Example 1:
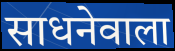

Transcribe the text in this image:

साधनेवाला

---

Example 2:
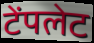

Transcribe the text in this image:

टेंपलेट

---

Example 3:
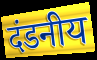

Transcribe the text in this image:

दंडनीय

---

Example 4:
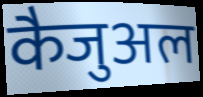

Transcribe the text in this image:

कैजुअल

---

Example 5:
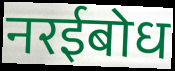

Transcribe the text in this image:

नरईबोध